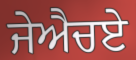
ਜੇਐਚਏ